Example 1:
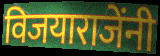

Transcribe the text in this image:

विजयाराजेंनी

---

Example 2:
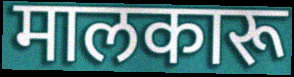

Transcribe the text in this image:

मालकारू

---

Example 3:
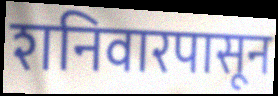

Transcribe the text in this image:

शनिवारपासून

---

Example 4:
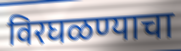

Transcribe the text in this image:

विरघळण्याचा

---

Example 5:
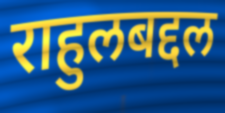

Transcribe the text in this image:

राहुलबद्दल